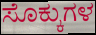
ಸೊಕ್ಕುಗಳ